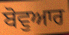
ਬੋਵੁਆਰ